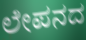
ಲೇಪನದ